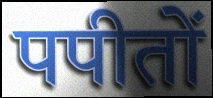
पपीतों